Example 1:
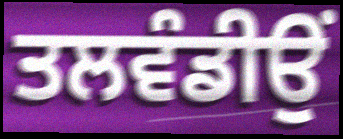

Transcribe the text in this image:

ਤਲਵੰਡੀਉਂ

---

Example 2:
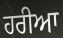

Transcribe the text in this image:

ਹਰੀਆ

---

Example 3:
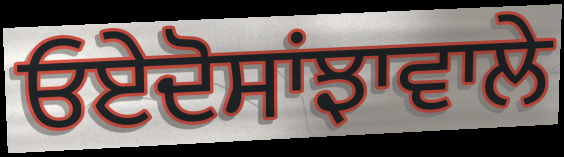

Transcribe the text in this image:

ਓਏਦੋਸਾਂਝਾਵਾਲੇ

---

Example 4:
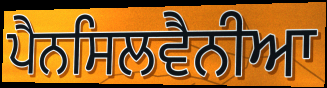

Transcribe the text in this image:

ਪੈਨਸਿਲਵੈਨੀਆ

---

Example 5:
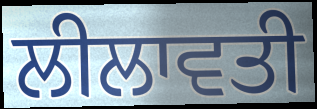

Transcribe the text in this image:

ਲੀਲਾਵਤੀ